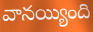
వానయ్యింది